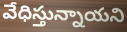
వేధిస్తున్నాయని